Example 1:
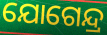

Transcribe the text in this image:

ଯୋଗେନ୍ଦ୍ର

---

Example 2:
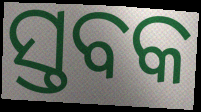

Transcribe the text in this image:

ସ୍ତବକ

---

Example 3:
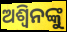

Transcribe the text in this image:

ଅଶ୍ବିନଙ୍କୁ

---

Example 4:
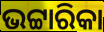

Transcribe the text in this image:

ଭଟ୍ଟାରିକା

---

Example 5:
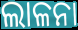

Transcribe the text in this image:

ଲାଳନା